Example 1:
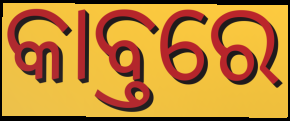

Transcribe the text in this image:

କାବ୍ତରେ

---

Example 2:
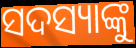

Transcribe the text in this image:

ସଦସ୍ୟାଙ୍କୁ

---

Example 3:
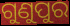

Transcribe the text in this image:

ଗୁଣୁପୁର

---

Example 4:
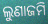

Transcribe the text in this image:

ଲୁଣାଜମି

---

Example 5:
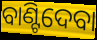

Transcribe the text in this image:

ବାଣ୍ଟିଦେବା